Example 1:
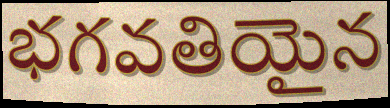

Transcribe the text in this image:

భగవతియైన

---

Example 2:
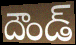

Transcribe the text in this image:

దౌండ్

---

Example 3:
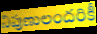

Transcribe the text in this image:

నిపుణులందరికీ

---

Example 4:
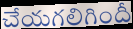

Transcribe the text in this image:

చేయగలిగిందీ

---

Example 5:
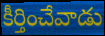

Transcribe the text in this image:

కీర్తించేవాడు